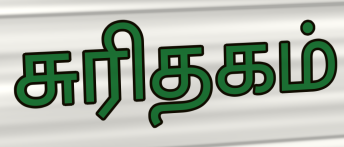
சுரிதகம்